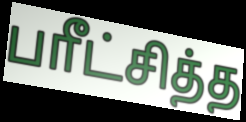
பரீட்சித்த